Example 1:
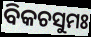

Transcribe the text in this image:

ବିକଚସୁମଃ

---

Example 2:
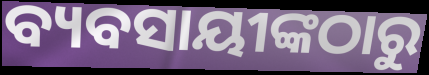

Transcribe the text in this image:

ବ୍ୟବସାୟୀଙ୍କଠାରୁ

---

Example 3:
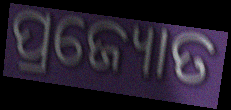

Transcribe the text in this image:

ପ୍ରଜ୍ୟୋତ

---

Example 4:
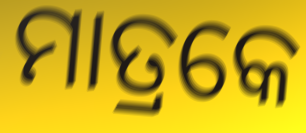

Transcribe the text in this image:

ମାତ୍ରକେ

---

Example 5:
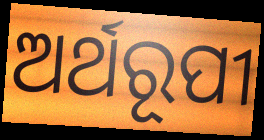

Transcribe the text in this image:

ଅର୍ଥରୂପୀ